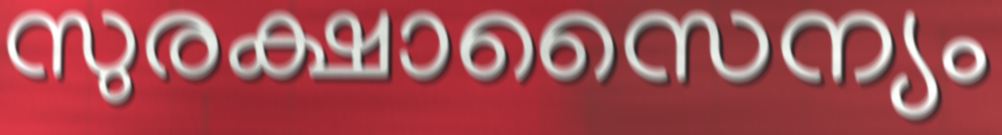
സുരക്ഷാസൈന്യം